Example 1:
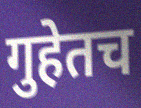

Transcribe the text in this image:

गुहेतच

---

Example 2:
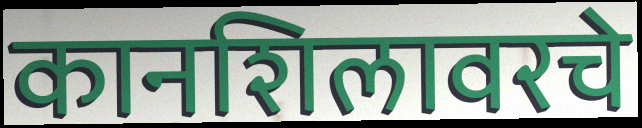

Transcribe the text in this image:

कानशिलावरचे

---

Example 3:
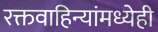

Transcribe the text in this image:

रक्तवाहिन्यांमध्येही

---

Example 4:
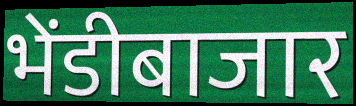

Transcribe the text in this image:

भेंडीबाजार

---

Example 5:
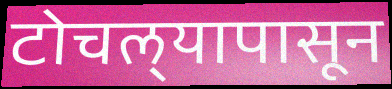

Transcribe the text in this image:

टोचल्यापासून